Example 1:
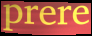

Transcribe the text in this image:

prere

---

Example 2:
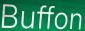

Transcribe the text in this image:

Buffon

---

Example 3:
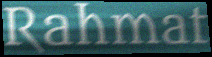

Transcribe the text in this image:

Rahmat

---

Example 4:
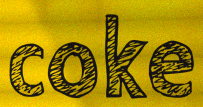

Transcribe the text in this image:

coke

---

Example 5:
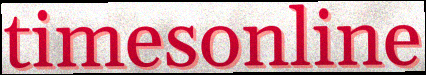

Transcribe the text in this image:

timesonline